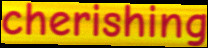
cherishing